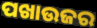
ପଖାଉଜର